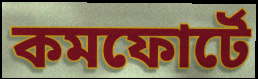
কমফোর্টে